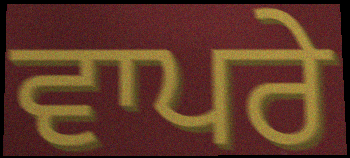
ਵਾਪਰੇ